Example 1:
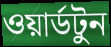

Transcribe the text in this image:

ওয়ার্ডটুন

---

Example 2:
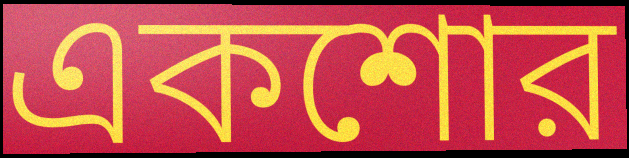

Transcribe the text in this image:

একশোর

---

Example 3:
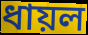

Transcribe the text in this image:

ধায়ল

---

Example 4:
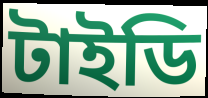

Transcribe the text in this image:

টাইডি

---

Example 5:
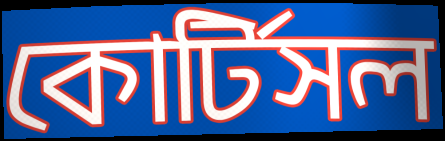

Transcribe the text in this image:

কোর্টিসল